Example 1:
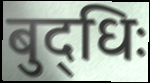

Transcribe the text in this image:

बुद्धिः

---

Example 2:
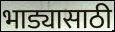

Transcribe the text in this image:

भाड्यासाठी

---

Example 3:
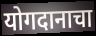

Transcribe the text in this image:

योगदानाचा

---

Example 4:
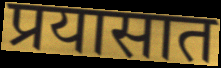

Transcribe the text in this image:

प्रयासात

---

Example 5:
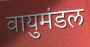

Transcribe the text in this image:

वायुमंडल